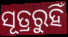
ସୂତ୍ରରୁହିଁ